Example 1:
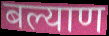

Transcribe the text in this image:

बल्याण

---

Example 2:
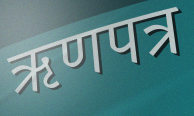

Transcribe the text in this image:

ऋणपत्र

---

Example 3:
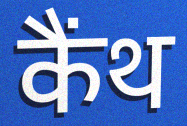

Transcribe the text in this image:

कैंथ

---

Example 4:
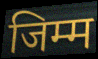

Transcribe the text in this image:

जिम्म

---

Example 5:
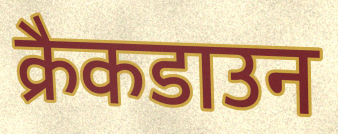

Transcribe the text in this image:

क्रैकडाउन